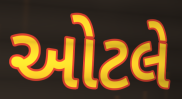
ઓટલે